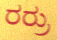
ರರ್ರು